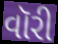
વૉરી